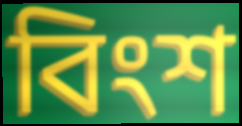
বিংশ